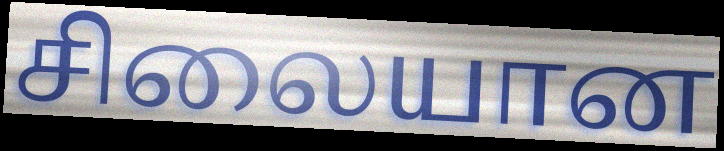
சிலையான